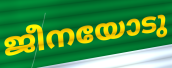
ജീനയോടു